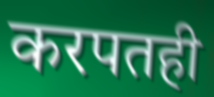
करपतही